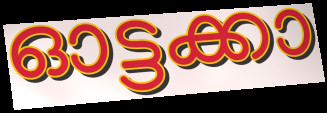
ഓട്ടക്കാ